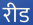
रीड